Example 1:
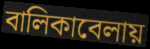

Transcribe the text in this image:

বালিকাবেলায়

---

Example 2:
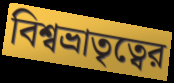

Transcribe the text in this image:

বিশ্বভ্রাতৃত্বের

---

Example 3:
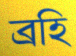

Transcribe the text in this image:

ব্রহি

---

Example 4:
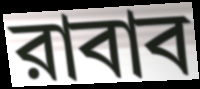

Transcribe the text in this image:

রাবাব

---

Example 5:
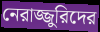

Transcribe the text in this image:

নেরাজ্জুরিদের